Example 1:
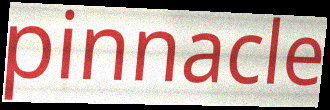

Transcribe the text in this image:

pinnacle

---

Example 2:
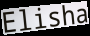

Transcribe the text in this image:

Elisha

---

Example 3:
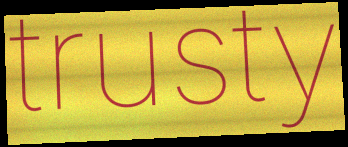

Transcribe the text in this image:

trusty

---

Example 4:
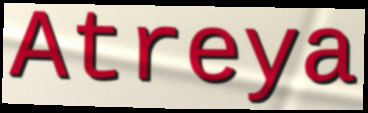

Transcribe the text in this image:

Atreya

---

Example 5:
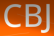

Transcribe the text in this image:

CBJ